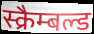
स्क्रैम्बल्ड